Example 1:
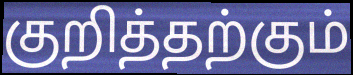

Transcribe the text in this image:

குறித்தற்கும்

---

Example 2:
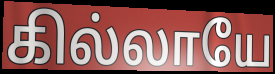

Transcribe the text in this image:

கில்லாயே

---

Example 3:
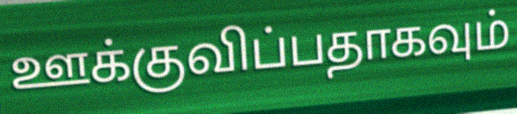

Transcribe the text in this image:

ஊக்குவிப்பதாகவும்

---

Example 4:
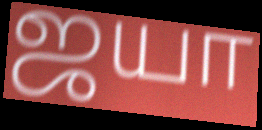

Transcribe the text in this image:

ஜயா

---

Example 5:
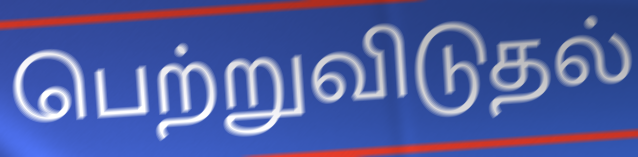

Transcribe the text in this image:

பெற்றுவிடுதல்